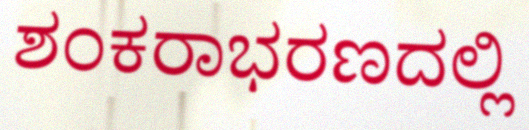
ಶಂಕರಾಭರಣದಲ್ಲಿ